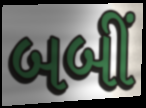
બબીં